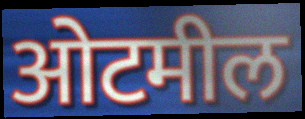
ओटमील